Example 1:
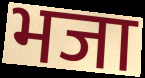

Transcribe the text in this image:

भजा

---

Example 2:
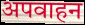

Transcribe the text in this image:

अपवाहन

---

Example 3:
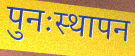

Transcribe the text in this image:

पुनःस्थापन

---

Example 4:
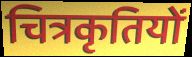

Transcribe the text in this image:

चित्रकृतियों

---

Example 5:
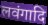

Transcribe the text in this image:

लवंगादि